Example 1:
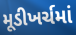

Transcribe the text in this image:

મૂડીખર્ચમાં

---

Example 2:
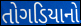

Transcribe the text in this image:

તોગડિયાનો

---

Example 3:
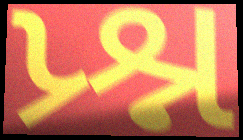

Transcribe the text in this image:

પ્ર્શ્ન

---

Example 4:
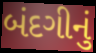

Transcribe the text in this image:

બંદગીનું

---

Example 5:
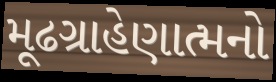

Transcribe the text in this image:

મૂઢગ્રાહેણાત્મનો